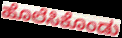
ಹೊಲೆಸಿಕೊಂಡು